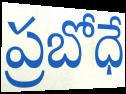
ప్రబోధే